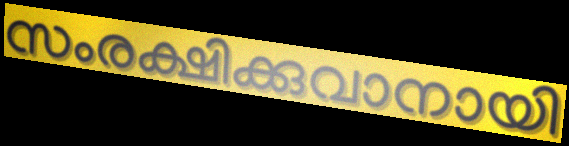
സംരക്ഷിക്കുവാനായി